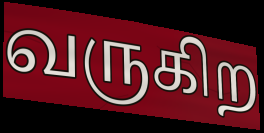
வருகிற